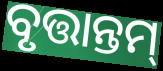
ବୃତ୍ତାନ୍ତମ୍